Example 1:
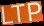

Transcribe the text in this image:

LTP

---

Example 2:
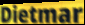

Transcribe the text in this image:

Dietmar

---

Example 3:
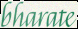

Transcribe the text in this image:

bharate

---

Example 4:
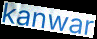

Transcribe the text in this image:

kanwar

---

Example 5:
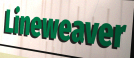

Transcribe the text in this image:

Lineweaver